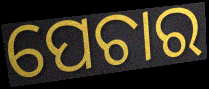
ପେଚାର